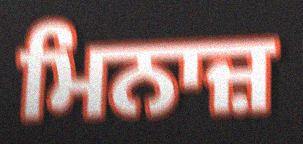
ਮਿਨਾਜ਼